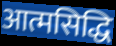
आत्मसिद्धि